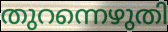
തുറന്നെഴുതി